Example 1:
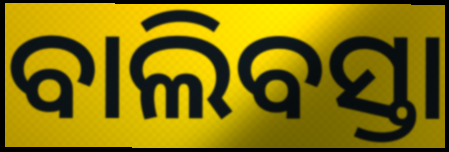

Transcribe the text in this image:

ବାଲିବସ୍ତା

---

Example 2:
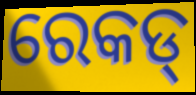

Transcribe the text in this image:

ରେକଡ୍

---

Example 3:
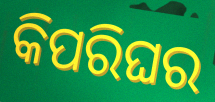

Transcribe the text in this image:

କିପରିଘର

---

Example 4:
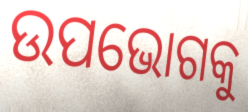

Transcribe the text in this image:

ଉପଭୋଗକୁ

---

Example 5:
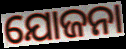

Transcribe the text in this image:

ଯୋଜନା